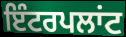
ਇੰਟਰਪਲਾਂਟ